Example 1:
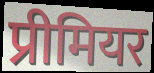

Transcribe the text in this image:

प्रीमियर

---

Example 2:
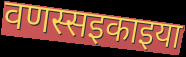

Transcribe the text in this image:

वणस्सइकाइया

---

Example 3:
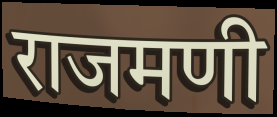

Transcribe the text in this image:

राजमणी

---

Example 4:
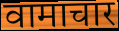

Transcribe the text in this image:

वामाचार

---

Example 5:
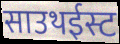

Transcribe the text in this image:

साउथईस्ट